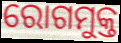
ରୋଗମୁକ୍ତ